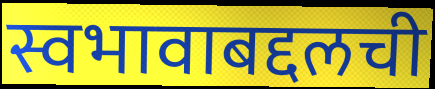
स्वभावाबद्दलची